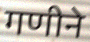
गणीने